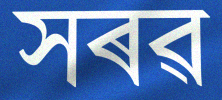
সৰৱ